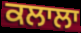
ਕਲਾਲਾ